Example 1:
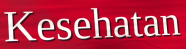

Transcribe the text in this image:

Kesehatan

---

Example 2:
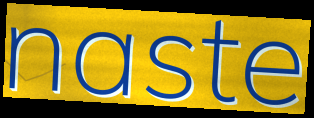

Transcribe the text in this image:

naste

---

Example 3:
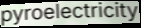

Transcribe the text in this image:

pyroelectricity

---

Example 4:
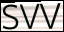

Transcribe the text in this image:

svv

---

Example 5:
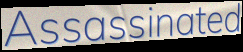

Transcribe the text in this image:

Assassinated